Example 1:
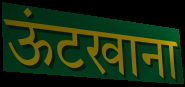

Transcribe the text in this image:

ऊंटखाना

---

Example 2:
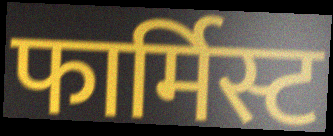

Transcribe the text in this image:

फार्मिस्ट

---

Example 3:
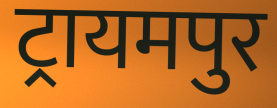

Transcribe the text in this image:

ट्रायमपुर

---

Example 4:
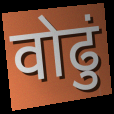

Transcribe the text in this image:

वोढुं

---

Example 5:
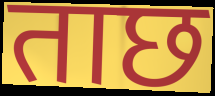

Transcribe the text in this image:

ताछ